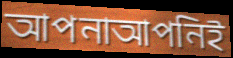
আপনাআপনিই